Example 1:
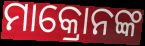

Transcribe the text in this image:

ମାକ୍ରୋନଙ୍କ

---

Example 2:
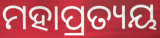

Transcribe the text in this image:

ମହାପ୍ରତ୍ୟୟ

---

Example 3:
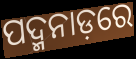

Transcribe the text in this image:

ପଦ୍ମନାଡ଼ରେ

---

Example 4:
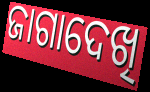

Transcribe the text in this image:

ଜାଗାଦେଖି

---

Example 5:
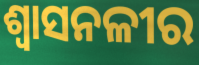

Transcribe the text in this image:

ଶ୍ୱାସନଳୀର